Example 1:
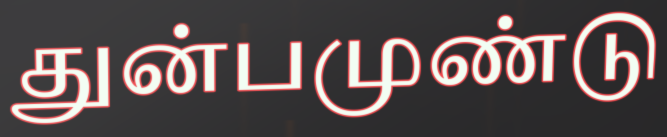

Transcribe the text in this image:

துன்பமுண்டு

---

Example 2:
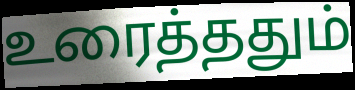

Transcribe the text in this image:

உரைத்ததும்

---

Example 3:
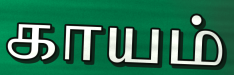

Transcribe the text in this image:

காயம்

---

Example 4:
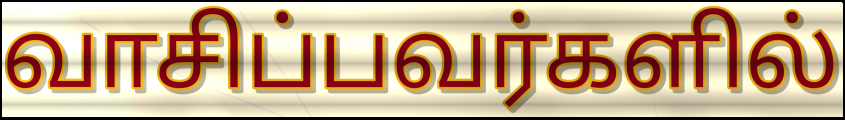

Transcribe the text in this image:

வாசிப்பவர்களில்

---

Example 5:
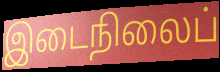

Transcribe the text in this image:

இடைநிலைப்